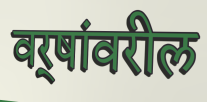
वर्षांवरील